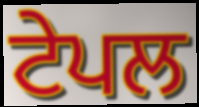
ਟੇਪਲ